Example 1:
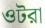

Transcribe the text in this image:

ওটরা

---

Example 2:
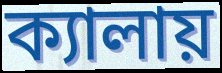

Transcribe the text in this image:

ক্যালায়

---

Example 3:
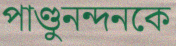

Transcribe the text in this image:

পাণ্ডুনন্দনকে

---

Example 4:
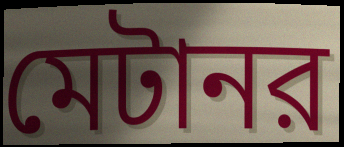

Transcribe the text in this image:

মেটানর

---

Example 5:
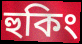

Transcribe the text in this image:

হুকিং